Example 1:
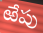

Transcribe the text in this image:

ఱేపు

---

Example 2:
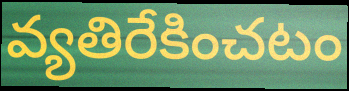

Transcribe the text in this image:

వ్యతిరేకించటం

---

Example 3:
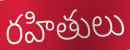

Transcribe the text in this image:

రహితులు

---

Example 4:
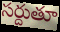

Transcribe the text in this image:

సర్దుతూ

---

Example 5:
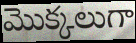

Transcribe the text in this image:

మొక్కలుగా